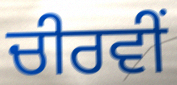
ਚੀਰਵੀਂ